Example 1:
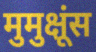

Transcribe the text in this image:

मुमुक्षूंस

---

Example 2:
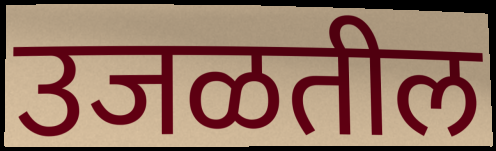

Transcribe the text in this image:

उजळतील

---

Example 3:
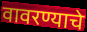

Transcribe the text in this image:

वावरण्याचे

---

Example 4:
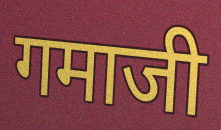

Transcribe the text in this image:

गमाजी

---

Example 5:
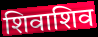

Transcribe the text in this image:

शिवाशिव